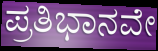
ಪ್ರತಿಭಾನವೇ